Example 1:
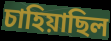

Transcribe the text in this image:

চাহিয়াছিল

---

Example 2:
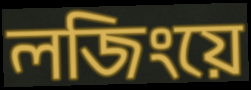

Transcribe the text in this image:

লজিংয়ে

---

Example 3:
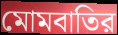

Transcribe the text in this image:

মোমবাতির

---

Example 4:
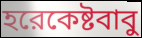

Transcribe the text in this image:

হরেকেষ্টবাবু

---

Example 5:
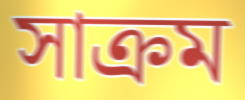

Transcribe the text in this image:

সাক্রম